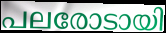
പലരോടായി